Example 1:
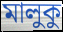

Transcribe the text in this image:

মালুকু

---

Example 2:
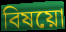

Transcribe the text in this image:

বিষয়ো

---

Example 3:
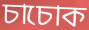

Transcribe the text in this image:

চাচোক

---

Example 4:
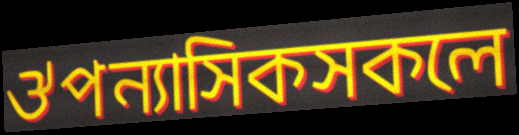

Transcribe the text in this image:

ঔপন্যাসিকসকলে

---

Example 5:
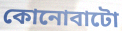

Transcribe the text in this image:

কোনোবাটো